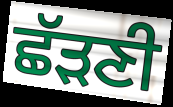
ਛੱੜਣੀ